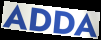
ADDA